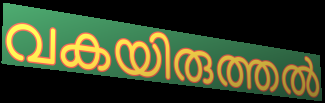
വകയിരുത്തൽ